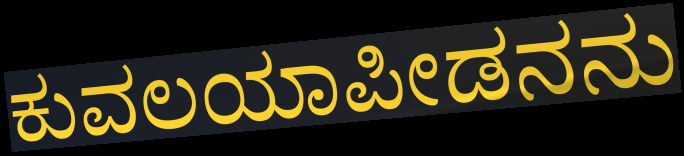
ಕುವಲಯಾಪೀಡನನು